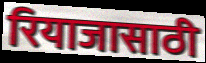
रियाजासाठी